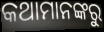
କଥାମାନଙ୍କରୁ